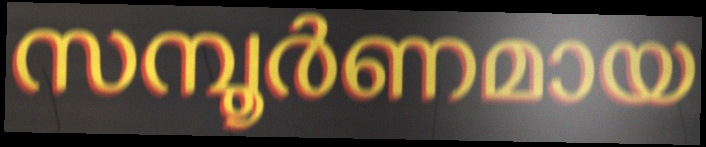
സമ്പൂർണമായ